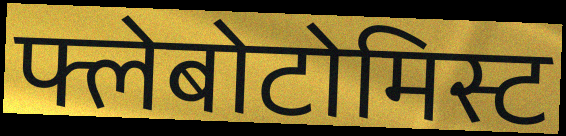
फ्लेबोटोमिस्ट